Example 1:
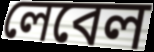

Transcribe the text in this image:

লেবেল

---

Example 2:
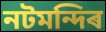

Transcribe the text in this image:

নটমন্দিৰ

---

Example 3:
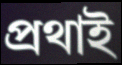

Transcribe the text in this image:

প্ৰথাই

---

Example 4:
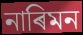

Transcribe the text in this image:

নাৰিমন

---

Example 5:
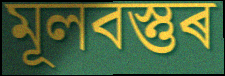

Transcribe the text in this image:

মূলবস্তুৰ